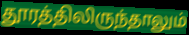
தூரத்திலிருந்தாலும்